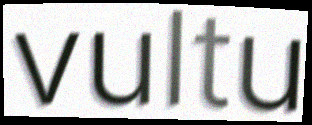
vultu